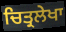
ਚਿਤ੍ਰਲੇਖਾ